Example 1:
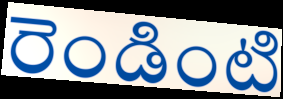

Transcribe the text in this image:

రెండింటి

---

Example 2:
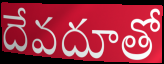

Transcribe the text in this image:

దేవదూతో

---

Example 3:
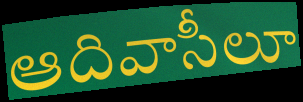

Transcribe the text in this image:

ఆదివాసీలూ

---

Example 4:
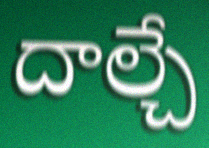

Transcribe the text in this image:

దాల్చే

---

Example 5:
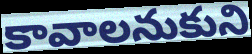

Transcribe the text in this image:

కావాలనుకుని